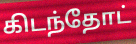
கிடந்தோட்